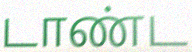
டாண்ட